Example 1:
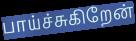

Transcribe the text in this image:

பாய்ச்சுகிறேன்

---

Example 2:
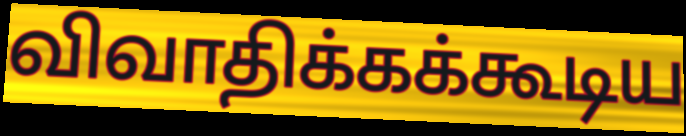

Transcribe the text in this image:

விவாதிக்கக்கூடிய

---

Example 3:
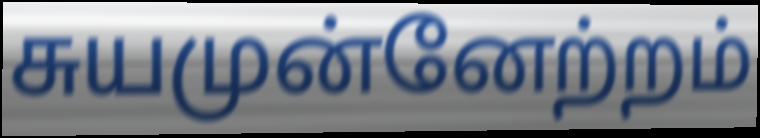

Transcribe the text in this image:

சுயமுன்னேற்றம்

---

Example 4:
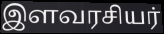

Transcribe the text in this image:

இளவரசியர்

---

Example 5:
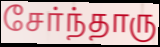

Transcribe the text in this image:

சேர்ந்தாரு